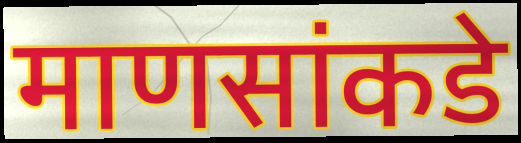
माणसांकडे